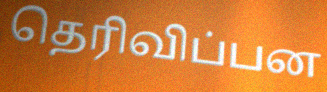
தெரிவிப்பன